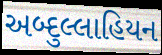
અબ્દુલ્લાહિયન